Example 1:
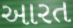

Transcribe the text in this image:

આરત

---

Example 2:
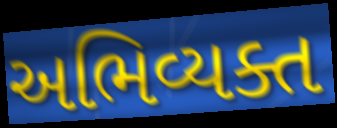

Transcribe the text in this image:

અભિવ્યક્ત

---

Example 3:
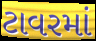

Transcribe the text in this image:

ટાવરમાં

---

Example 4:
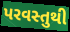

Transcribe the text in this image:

પરવસ્તુથી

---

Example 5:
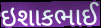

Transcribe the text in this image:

ઇશાકભાઈ